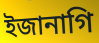
ইজানাগি